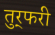
तुर्फरी